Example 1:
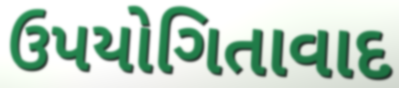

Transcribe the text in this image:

ઉપયોગિતાવાદ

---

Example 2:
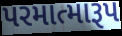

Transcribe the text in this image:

પરમાત્મારૂપ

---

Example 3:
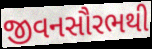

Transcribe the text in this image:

જીવનસૌરભથી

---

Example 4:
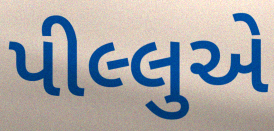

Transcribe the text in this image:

પીલ્લુએ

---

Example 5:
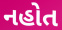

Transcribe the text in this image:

નહોત